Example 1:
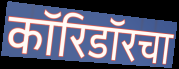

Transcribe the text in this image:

कॉरिडॉरचा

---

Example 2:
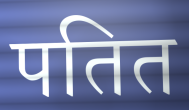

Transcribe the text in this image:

पतित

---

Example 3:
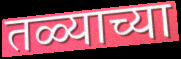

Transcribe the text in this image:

तळ्याच्या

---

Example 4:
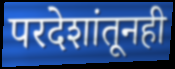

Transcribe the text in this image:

परदेशांतूनही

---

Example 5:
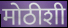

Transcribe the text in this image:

मोठीशी